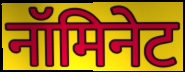
नॉमिनेट